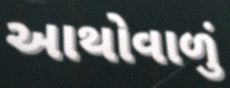
આથોવાળું